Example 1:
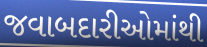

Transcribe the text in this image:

જવાબદારીઓમાંથી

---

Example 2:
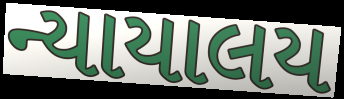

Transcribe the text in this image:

ન્યાયાલય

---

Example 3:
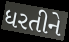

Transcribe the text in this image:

ધરતીને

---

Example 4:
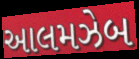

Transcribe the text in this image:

આલમઝેબ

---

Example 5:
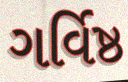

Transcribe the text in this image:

ગર્વિષ્ઠ